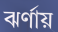
ঝর্ণায়